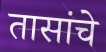
तासांचे